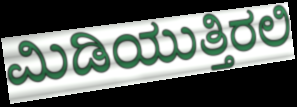
ಮಿಡಿಯುತ್ತಿರಲಿ